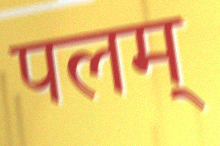
पलम्